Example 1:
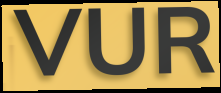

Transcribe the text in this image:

VUR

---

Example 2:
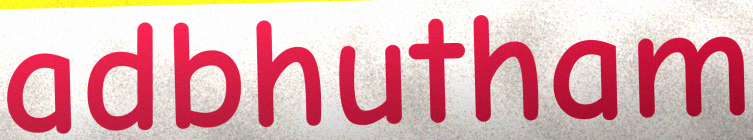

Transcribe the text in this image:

adbhutham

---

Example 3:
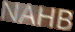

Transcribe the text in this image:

NAHB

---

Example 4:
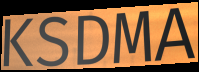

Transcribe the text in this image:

KSDMA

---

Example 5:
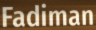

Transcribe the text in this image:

Fadiman